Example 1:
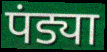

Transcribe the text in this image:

पंड्या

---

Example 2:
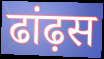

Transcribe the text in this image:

ढांढ़स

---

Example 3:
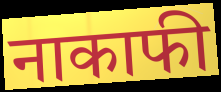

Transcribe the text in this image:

नाकाफी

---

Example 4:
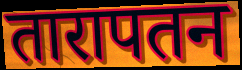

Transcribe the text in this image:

तारापतन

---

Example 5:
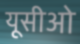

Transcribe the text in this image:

यूसीओ